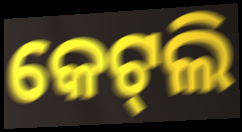
କେଟ୍‌ଲି